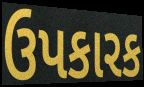
ઉપકારક